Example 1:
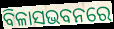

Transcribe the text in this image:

ବିଳାସଭବନରେ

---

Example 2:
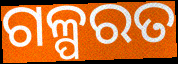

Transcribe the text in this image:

ଗଳ୍ପରତ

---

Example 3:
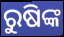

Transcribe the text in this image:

ରୁଷିଙ୍କ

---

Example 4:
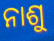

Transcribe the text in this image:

ନାଶୁ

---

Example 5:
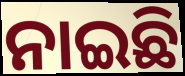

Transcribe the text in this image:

ନାଇଛି